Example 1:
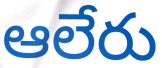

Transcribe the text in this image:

ఆలేరు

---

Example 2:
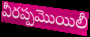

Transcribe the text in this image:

వీరప్పమొయిలీ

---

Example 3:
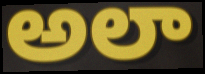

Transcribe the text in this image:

అలా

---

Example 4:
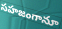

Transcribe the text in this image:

సహజంగానూ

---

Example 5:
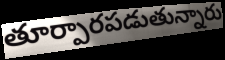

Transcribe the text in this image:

తూర్పారపడుతున్నారు